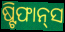
ଷ୍ଟିଫାନ୍‍ସ